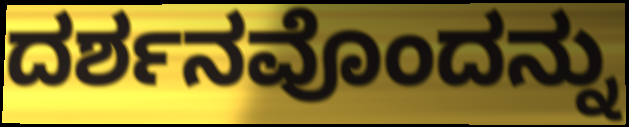
ದರ್ಶನವೊಂದನ್ನು